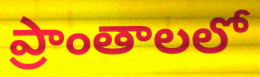
ప్రాంతాలలో